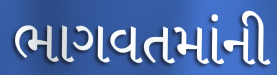
ભાગવતમાંની